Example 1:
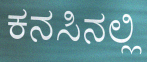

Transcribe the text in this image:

ಕನಸಿನಲ್ಲಿ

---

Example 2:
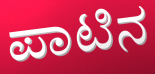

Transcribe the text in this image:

ಪಾಟಿನ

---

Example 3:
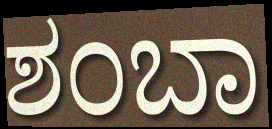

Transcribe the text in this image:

ಶಂಬಾ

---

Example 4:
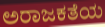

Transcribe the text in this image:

ಅರಾಜಕತೆಯ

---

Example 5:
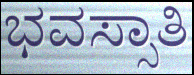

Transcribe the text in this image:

ಭವಸ್ಸಾತಿ